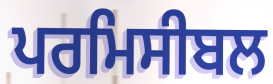
ਪਰਮਿਸੀਬਲ